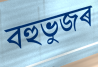
বহুভুজৰ